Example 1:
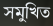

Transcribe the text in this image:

সমুখিত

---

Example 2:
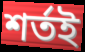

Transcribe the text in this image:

শর্তই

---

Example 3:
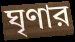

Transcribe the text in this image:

ঘৃণার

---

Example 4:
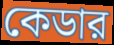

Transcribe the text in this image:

কেডার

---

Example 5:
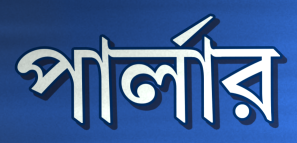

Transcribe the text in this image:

পার্লার